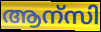
ആന്സി